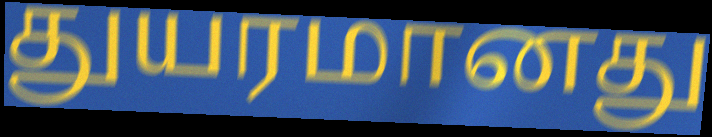
துயரமானது